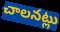
చాలనట్లు